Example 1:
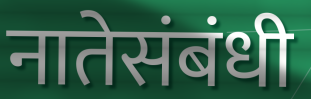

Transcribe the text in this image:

नातेसंबंधी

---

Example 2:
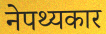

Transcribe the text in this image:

नेपथ्यकार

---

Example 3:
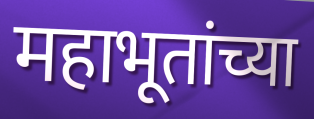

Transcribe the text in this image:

महाभूतांच्या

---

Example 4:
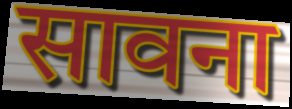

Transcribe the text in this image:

सावना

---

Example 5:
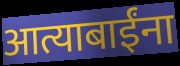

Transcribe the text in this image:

आत्याबाईंना